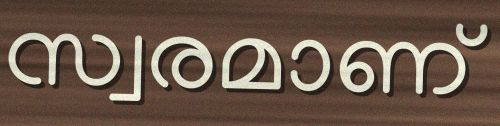
സ്വരമാണ്